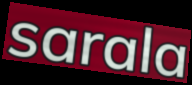
sarala